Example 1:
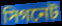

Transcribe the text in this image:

সিগনেট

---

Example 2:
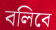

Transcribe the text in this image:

বলিবে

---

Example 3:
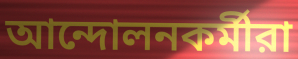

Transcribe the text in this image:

আন্দোলনকর্মীরা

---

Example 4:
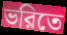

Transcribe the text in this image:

ভরিতে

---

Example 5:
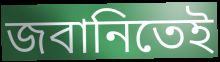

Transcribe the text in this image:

জবানিতেই